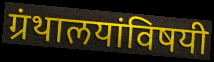
ग्रंथालयांविषयी